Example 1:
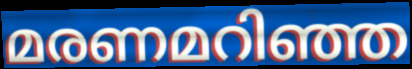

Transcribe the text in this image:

മരണമറിഞ്ഞ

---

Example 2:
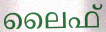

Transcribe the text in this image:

ലൈഫ്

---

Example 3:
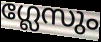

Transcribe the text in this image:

ഗ്ലേസും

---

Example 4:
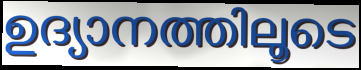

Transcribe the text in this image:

ഉദ്യാനത്തിലൂടെ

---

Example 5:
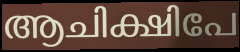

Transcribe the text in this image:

ആചിക്ഷിപേ